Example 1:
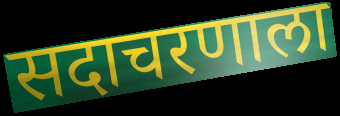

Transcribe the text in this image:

सदाचरणाला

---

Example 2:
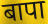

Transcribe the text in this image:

बापा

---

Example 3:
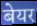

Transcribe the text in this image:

बेयर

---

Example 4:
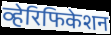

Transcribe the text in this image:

व्हेरिफिकेशन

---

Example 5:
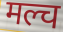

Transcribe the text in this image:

मल्च